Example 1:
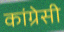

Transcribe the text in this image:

कांग्रेसी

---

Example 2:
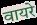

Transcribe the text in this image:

वायरे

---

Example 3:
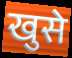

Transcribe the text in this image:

खुसे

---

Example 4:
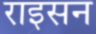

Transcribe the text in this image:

राइसन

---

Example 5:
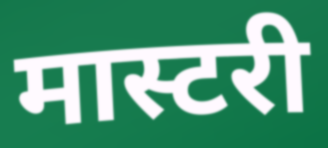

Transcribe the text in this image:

मास्टरी